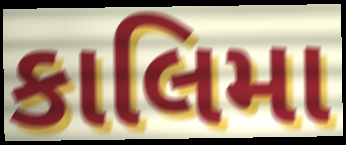
કાલિમા